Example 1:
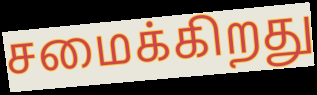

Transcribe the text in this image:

சமைக்கிறது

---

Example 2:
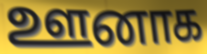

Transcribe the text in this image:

ஊனாக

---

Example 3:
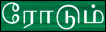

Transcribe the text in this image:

ரோடும்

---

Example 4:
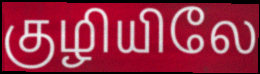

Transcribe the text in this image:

குழியிலே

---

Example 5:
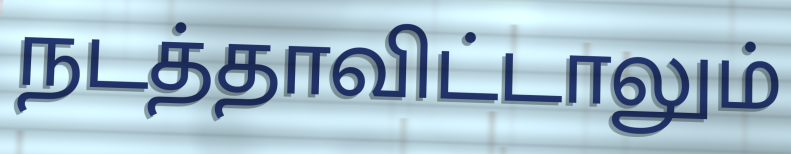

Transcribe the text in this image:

நடத்தாவிட்டாலும்